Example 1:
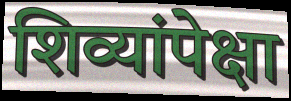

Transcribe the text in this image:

शिव्यांपेक्षा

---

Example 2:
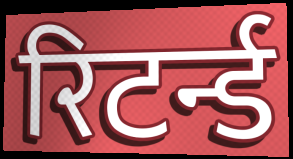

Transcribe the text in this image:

रिटर्न्ड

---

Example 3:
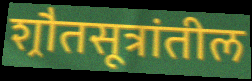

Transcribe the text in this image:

श्रौतसूत्रांतील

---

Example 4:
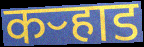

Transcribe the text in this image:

कऱ्हाड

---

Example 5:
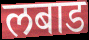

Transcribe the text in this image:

लबाड